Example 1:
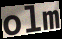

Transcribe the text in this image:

olm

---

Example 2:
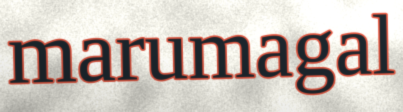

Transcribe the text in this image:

marumagal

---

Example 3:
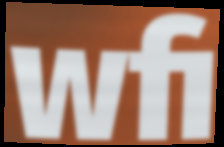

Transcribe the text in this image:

wfi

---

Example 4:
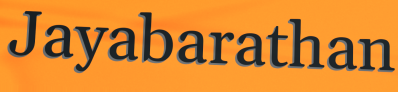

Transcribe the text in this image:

Jayabarathan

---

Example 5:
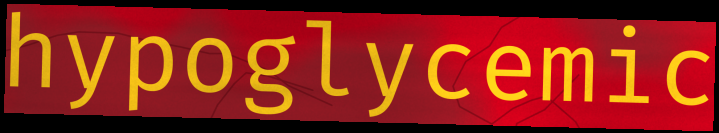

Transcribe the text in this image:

hypoglycemic